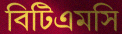
বিটিএমসি